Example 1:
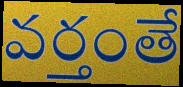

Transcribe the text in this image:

వర్తంతే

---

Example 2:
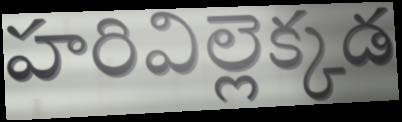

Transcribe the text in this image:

హరివిల్లెక్కడ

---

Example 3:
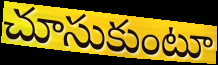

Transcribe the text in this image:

చూసుకుంటూ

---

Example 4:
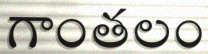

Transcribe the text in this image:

గాంతలం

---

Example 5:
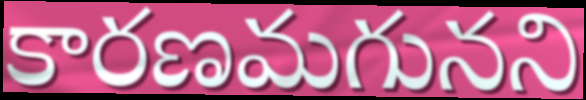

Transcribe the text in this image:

కారణమగునని